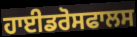
ਹਾਈਡਰੋਸਫਾਲਸ